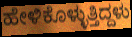
ಹೇಳಿಕೊಳ್ಳುತ್ತಿದ್ದಳು